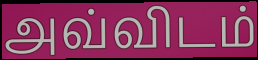
அவ்விடம்